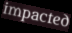
impacted